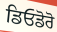
ਡਿਓਡੋਰੋ